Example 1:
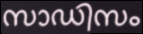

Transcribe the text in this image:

സാഡിസം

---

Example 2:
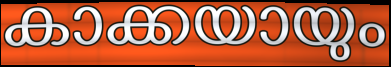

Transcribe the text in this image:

കാക്കയായും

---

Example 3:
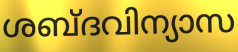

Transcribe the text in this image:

ശബ്ദവിന്യാസ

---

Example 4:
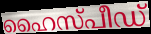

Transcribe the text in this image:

ഹൈസ്പീഡ്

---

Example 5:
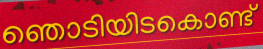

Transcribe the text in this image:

ഞൊടിയിടകൊണ്ട്